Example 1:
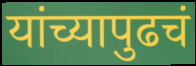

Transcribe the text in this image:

यांच्यापुढचं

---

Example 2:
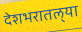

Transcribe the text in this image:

देशभरातल्या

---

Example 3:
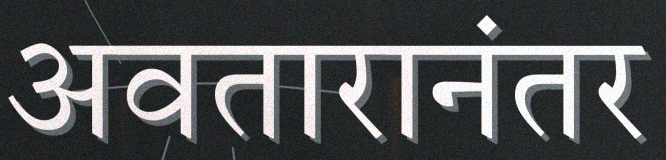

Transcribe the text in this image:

अवतारानंतर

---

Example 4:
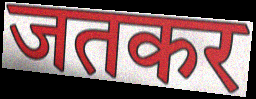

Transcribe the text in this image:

जतकर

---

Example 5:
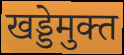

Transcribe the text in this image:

खड्डेमुक्त